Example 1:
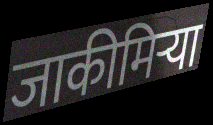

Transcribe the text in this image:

जाकीमिऱ्या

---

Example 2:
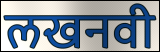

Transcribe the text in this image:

लखनवी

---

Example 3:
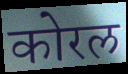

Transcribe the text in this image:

कोरल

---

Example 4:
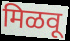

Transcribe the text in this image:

मिळवू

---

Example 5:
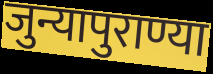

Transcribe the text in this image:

जुन्यापुराण्या